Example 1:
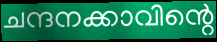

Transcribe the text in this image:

ചന്ദനക്കാവിന്റെ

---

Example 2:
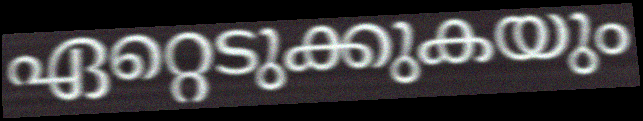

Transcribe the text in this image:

ഏറ്റെടുക്കുകയും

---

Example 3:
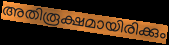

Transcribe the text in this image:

അതിരൂക്ഷമായിരിക്കും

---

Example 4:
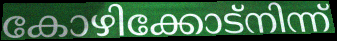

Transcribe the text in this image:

കോഴിക്കോട്നിന്ന്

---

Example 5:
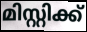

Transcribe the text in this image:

മിസ്റ്റിക്ക്